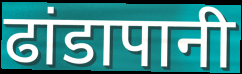
ढांडापानी